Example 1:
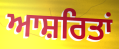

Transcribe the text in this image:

ਆਸ਼ਰਿਤਾਂ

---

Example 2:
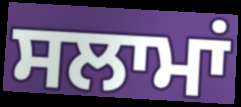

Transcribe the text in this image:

ਸਲਾਮਾਂ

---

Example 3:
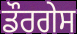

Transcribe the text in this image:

ਡੌਰਗੇਸ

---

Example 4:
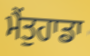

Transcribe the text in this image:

ਮੈਂਤੁਹਾਡਾ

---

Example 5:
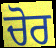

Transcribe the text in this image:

ਚੋਰ